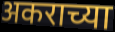
अकराच्या